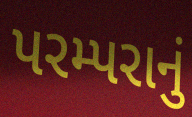
પરમ્પરાનું